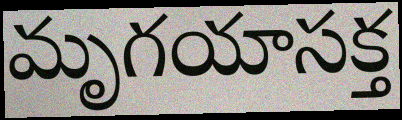
మృగయాసక్త